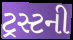
ટ્રસ્ટની